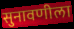
सुनावणीला